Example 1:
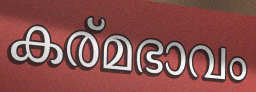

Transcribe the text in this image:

കര്മഭാവം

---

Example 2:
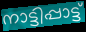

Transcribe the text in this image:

നാട്ടിപ്പാട്ട്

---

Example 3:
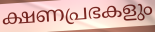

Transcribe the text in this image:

ക്ഷണപ്രഭകളും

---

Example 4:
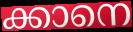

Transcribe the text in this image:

ക്കാനെ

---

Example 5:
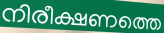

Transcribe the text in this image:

നിരീക്ഷണത്തെ